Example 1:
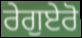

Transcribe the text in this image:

ਰੇਗੁਏਰੋ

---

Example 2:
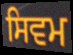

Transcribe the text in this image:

ਸਿਵਮ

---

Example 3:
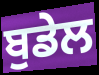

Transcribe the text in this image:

ਬੁਡੇਲ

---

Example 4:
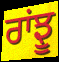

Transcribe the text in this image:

ਰਾਂਝੂ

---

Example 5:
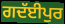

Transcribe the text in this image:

ਗਦੱਈਪੁਰ